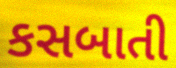
કસબાતી